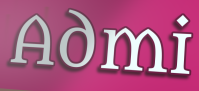
Admi